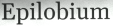
Epilobium